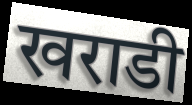
खराडी